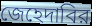
জেহেদাবির